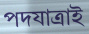
পদযাত্রাই